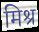
मिश्र